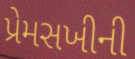
પ્રેમસખીની